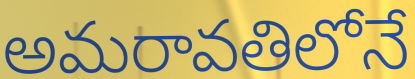
అమరావతిలోనే